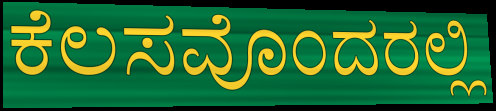
ಕೆಲಸವೊಂದರಲ್ಲಿ